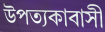
উপত্যকাবাসী